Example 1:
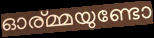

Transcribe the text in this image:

ഓര്മ്മയുണ്ടോ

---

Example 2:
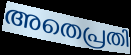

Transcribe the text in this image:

അതെപ്രതി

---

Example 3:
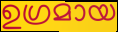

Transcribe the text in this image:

ഉഗ്രമായ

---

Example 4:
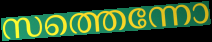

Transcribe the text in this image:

സത്തെന്നോ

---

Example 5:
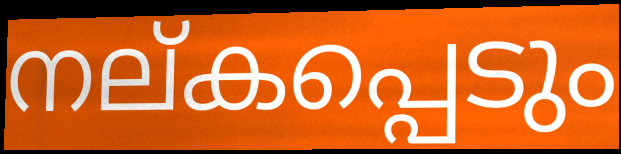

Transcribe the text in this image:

നല്കപ്പെടും